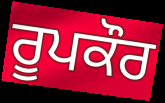
ਰੂਪਕੌਰ